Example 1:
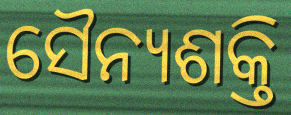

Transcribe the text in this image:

ସୈନ୍ୟଶକ୍ତି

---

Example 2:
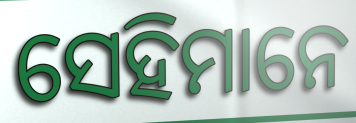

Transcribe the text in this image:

ସେହିମାନେ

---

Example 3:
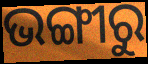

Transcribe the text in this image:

ଭଙ୍ଗୀରୁ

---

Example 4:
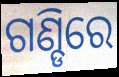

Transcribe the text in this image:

ଗଣ୍ଡିରେ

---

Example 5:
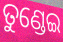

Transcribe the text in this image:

ତୁଣ୍ଡେଇ